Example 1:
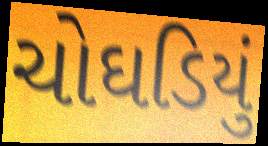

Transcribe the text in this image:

ચોઘડિયું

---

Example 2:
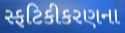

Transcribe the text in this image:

સ્ફટિકીકરણના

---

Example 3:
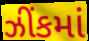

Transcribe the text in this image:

ઝીંકમાં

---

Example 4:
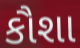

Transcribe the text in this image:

કૌશા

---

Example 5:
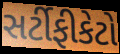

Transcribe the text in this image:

સર્ટીફીકેટો